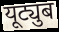
यूट्युब